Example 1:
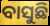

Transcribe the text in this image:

ବାସୁଛି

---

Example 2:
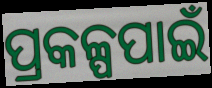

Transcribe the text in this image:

ପ୍ରକଳ୍ପପାଇଁ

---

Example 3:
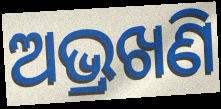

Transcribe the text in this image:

ଅଭ୍ରଖଣି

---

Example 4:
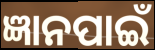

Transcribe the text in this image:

ଜ୍ଞାନପାଇଁ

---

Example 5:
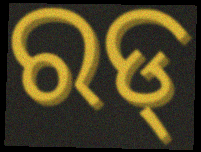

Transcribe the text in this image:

ରଡ୍